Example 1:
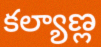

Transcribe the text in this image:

కల్యాణ్ల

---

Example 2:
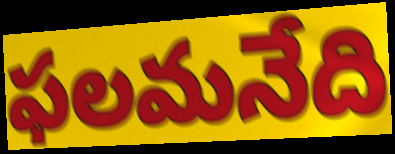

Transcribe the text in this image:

ఫలమనేది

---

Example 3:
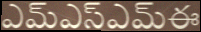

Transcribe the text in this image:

ఎమ్ఎస్ఎమ్ఈ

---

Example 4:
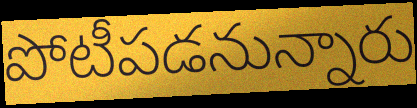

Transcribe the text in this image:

పోటీపడనున్నారు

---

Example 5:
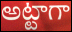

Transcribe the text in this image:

అట్టాగా